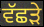
ਵੱਛੜੇ